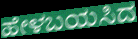
ಹೇಳಬಯಸಿದ